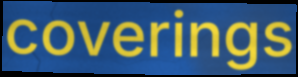
coverings